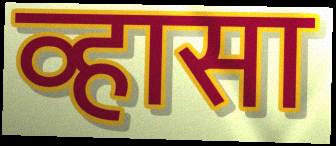
व्हासा